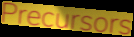
Precursors